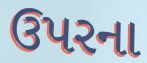
ઉપરના